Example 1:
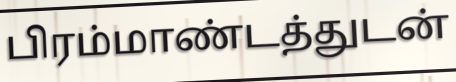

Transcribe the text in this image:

பிரம்மாண்டத்துடன்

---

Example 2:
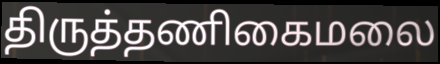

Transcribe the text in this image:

திருத்தணிகைமலை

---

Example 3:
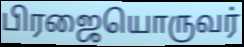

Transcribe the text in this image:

பிரஜையொருவர்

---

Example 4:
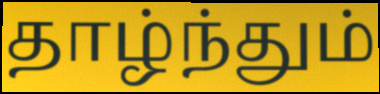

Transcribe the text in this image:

தாழ்ந்தும்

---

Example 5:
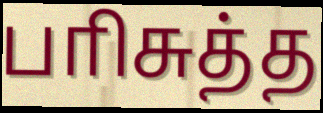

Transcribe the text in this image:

பரிசுத்த